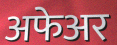
अफेअर